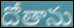
దోతాను